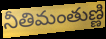
నీతిమంతుణ్ణి